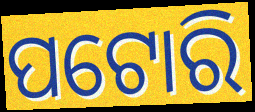
ପଟୋରି